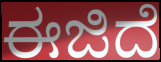
ಈಜಿದೆ